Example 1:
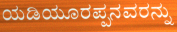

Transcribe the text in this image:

ಯಡಿಯೂರಪ್ಪನವರನ್ನು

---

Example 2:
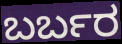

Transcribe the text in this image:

ಬರ್ಬರ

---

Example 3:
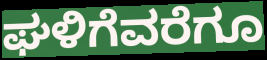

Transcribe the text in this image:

ಘಳಿಗೆವರೆಗೂ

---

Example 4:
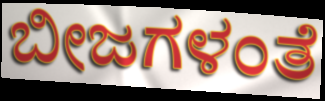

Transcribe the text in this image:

ಬೀಜಗಳಂತೆ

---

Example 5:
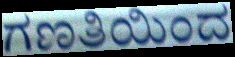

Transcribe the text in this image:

ಗಣತಿಯಿಂದ